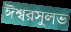
ঈশ্বরসুলভ